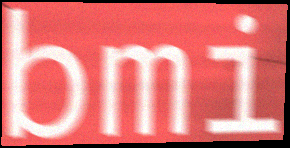
bmi